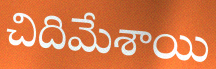
చిదిమేశాయి